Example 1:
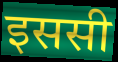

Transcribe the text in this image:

इससी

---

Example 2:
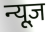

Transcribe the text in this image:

न्‍यूज़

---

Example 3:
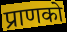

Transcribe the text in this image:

प्राणको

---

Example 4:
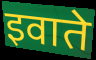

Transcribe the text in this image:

इवाते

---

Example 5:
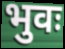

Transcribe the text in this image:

भुवः